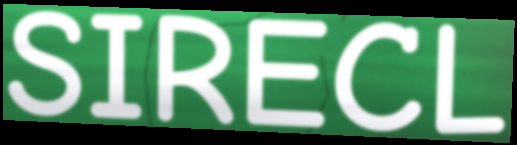
SIRECL